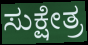
ಸುಕ್ಷೇತ್ರ